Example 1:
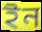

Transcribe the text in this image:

ইন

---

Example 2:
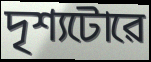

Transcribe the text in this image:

দৃশ্যটোৱে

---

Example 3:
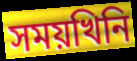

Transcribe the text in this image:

সময়খিনি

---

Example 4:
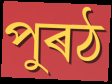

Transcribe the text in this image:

পুৰঠ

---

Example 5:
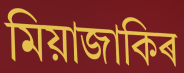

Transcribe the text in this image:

মিয়াজাকিৰ